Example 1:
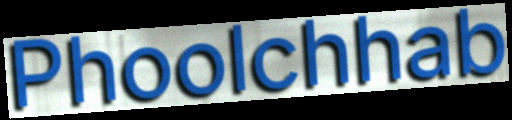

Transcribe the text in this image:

Phoolchhab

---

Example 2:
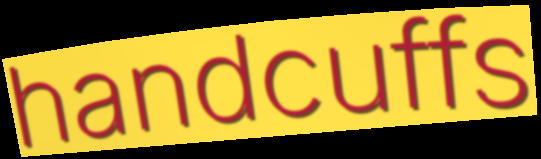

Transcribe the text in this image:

handcuffs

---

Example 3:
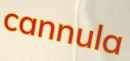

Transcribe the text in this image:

cannula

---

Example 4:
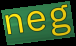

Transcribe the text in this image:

neg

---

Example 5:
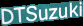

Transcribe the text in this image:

DTSuzuki